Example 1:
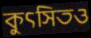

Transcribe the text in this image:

কুৎসিতও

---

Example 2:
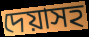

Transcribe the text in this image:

দেয়াসহ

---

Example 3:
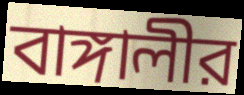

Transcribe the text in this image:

বাঙ্গালীর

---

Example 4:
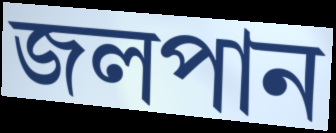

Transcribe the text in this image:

জলপান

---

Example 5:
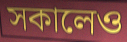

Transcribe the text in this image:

সকালেও